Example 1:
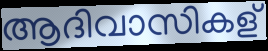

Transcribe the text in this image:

ആദിവാസികള്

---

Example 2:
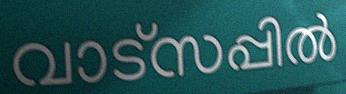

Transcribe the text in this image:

വാട്സപ്പിൽ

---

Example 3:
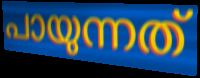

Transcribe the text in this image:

പായുന്നത്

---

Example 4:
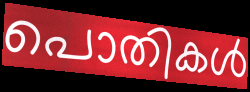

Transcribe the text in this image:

പൊതികൾ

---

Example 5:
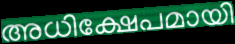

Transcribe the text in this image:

അധിക്ഷേപമായി